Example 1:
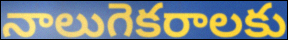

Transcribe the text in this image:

నాలుగెకరాలకు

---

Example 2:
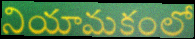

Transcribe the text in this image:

నియామకంలో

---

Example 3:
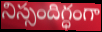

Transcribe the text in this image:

నిస్సందిగ్ధంగా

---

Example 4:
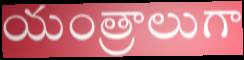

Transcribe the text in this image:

యంత్రాలుగా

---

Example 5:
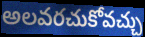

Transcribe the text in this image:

అలవరచుకోవచ్చు